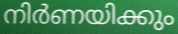
നിർണയിക്കും